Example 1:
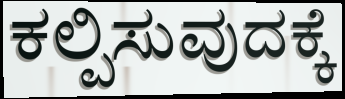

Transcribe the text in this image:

ಕಲ್ಪಿಸುವುದಕ್ಕೆ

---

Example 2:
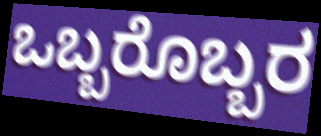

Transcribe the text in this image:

ಒಬ್ಬರೊಬ್ಬರ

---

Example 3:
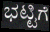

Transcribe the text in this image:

ಭಟ್ಟಿಗೆ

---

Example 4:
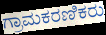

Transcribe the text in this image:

ಗ್ರಾಮಕರಣಿಕರು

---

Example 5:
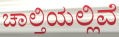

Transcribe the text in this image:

ಚಾಲ್ತಿಯಲ್ಲಿವೆ